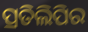
ପ୍ରତିଲିପିର